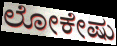
ಲೋಕೇಷು